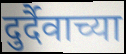
दुर्दैवाच्या